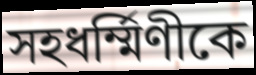
সহধর্ম্মিণীকে